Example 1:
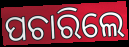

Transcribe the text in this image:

ପଚାରିଲେ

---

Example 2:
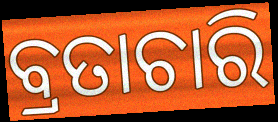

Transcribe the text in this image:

ବ୍ରତାଚାରି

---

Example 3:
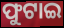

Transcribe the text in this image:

ଫୁଟାଇ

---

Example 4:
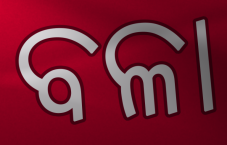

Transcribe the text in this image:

ବଳା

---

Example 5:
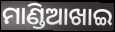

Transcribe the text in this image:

ମାଣ୍ଡିଆଖାଇ